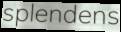
splendens